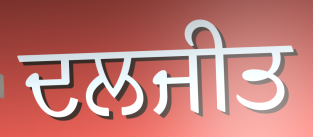
ਦਲਜੀਤ